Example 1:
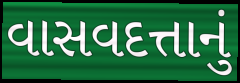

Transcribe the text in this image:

વાસવદત્તાનું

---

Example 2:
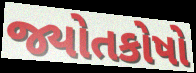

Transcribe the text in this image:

જ્યોતકોષો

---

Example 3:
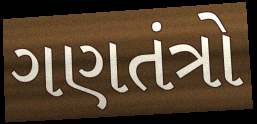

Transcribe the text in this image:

ગણતંત્રો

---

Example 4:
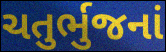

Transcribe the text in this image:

ચતુર્ભુજનાં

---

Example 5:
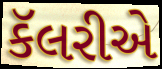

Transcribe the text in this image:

કૅલરીએ